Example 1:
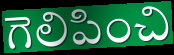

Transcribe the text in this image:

గెలిపించి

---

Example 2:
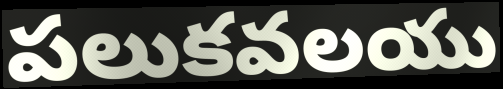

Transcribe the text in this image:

పలుకవలయు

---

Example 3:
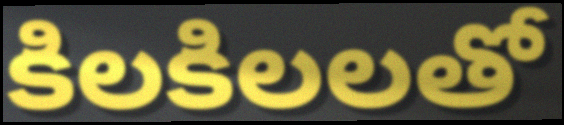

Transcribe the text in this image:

కిలకిలలతో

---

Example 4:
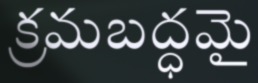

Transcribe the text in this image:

క్రమబద్ధమై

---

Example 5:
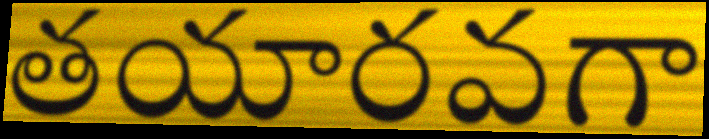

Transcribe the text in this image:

తయారవగా